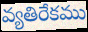
వ్యతిరేకము